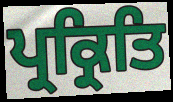
ਪ੍ਰਕ੍ਰਿਤਿ